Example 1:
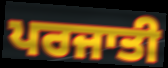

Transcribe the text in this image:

ਪਰਜਾਤੀ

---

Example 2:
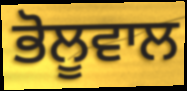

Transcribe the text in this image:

ਭੋਲੂਵਾਲ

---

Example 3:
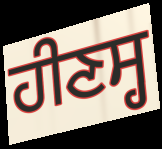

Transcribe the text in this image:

ਹੀਣਸ੍ਹ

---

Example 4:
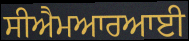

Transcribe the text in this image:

ਸੀਐਮਆਰਆਈ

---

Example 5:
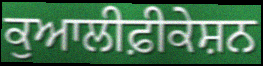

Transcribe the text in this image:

ਕੁਆਲੀਫ਼ੀਕੇਸ਼ਨ